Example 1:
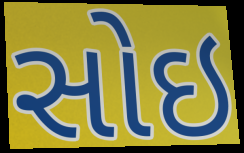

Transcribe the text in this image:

સોઇ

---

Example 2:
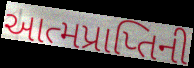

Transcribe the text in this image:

આત્મપ્રાપ્તિની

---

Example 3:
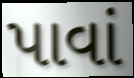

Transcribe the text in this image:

પાવાં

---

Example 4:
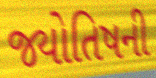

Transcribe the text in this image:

જ્યોતિષની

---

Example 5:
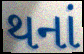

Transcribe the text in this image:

થનાં